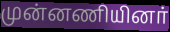
முன்னணியினர்